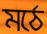
মঠে